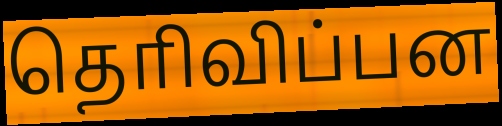
தெரிவிப்பன